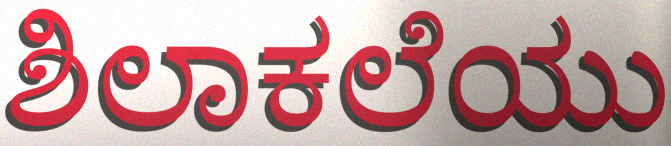
ಶಿಲಾಕಲೆಯು